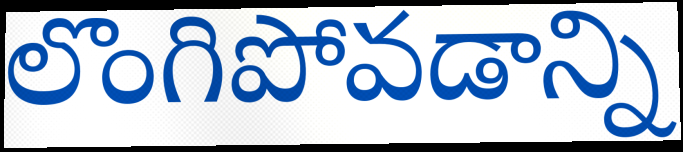
లొంగిపోవడాన్ని